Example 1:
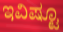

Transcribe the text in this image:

ಇವಿಷ್ಟೂ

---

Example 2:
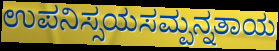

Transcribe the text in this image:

ಉಪನಿಸ್ಸಯಸಮ್ಪನ್ನತಾಯ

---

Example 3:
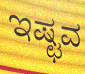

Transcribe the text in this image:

ಇಷ್ಟವ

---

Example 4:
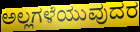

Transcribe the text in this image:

ಅಲ್ಲಗಳೆಯುವುದರ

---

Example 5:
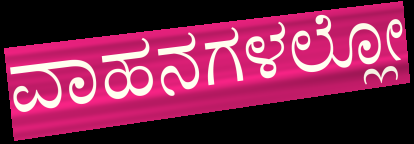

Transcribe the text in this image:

ವಾಹನಗಳಲ್ಲೋ